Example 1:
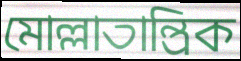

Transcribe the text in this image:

মোল্লাতান্ত্রিক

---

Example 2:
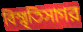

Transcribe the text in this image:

বিস্মৃতিসাগর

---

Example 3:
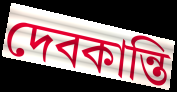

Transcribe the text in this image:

দেবকান্তি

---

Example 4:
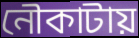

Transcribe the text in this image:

নৌকাটায়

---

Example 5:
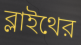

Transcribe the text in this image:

ব্লাইথের